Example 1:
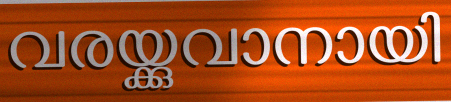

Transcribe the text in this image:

വരയ്ക്കുവാനായി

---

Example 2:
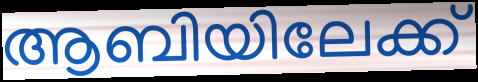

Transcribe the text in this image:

ആബിയിലേക്ക്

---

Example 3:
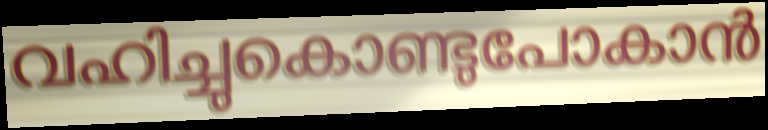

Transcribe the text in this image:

വഹിച്ചുകൊണ്ടുപോകാൻ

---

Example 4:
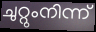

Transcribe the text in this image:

ചുറ്റുംനിന്ന്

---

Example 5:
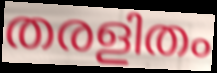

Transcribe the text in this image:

തരളിതം